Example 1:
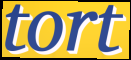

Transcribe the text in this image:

tort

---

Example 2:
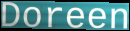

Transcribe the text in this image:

Doreen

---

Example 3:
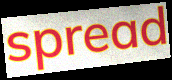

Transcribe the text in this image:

spread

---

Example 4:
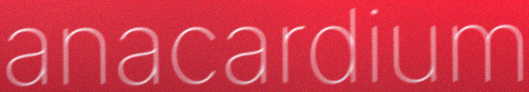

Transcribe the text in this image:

anacardium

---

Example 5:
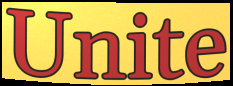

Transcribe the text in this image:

Unite